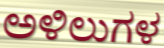
ಅಳಿಲುಗಳ